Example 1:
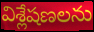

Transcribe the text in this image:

విశ్లేషణలను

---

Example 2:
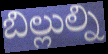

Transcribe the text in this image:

బిల్లుల్ని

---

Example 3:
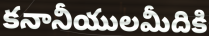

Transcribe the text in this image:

కనానీయులమీదికి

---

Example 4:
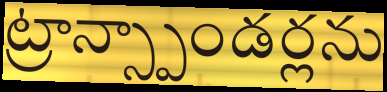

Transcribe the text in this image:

ట్రాన్స్పాండర్లను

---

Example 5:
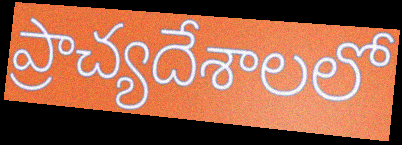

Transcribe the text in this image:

ప్రాచ్యదేశాలలో